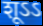
शूऽऽ